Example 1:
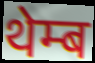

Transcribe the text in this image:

थेम्ब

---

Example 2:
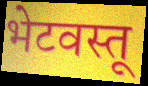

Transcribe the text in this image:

भेटवस्तू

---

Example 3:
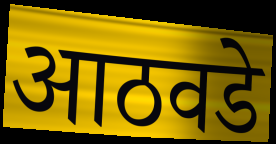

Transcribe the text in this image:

आठवडे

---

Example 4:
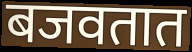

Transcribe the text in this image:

बजवतात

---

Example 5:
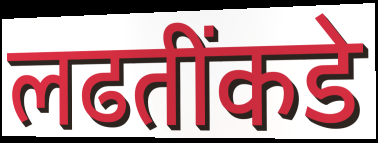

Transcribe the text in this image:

लढतींकडे